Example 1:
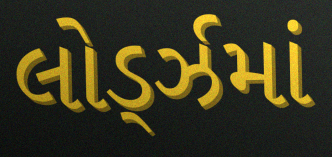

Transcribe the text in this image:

લોર્ડ્ઝમાં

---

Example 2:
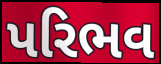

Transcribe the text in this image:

પરિભવ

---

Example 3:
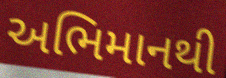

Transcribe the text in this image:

અભિમાનથી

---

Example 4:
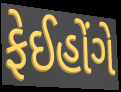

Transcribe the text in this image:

ફેઈહોંગે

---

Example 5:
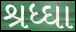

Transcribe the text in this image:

શ્રધ્ઘા